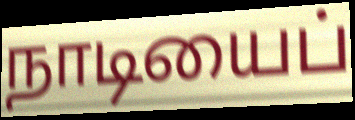
நாடியைப்